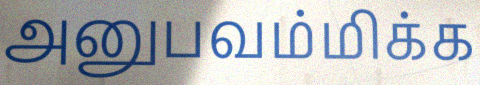
அனுபவம்மிக்க